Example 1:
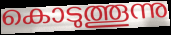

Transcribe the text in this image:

കൊടുത്തൂന്നു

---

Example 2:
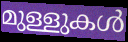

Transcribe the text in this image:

മുള്ളുകൾ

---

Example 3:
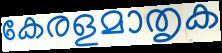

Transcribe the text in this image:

കേരളമാതൃക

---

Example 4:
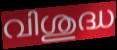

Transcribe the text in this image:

വിശുദ്ധ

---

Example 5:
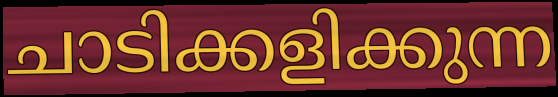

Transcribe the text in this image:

ചാടിക്കളിക്കുന്ന